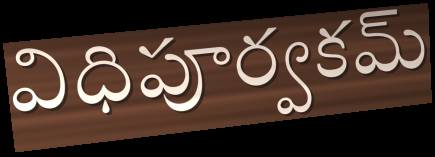
విధిపూర్వకమ్